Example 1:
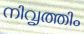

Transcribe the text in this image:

നിവൃത്തിം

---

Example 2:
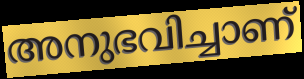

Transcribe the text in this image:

അനുഭവിച്ചാണ്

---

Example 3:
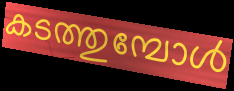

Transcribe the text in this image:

കടത്തുമ്പോൾ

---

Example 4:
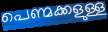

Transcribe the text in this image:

പെണ്മക്കളുള്ള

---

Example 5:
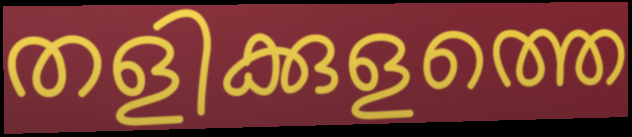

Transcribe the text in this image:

തളിക്കുളത്തെ